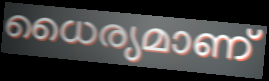
ധൈര്യമാണ്